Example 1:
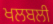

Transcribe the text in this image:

ਖਲਬਲੀ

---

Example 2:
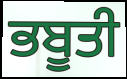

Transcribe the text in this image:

ਭਬੂਤੀ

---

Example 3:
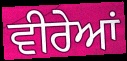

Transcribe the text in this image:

ਵੀਰੇਆਂ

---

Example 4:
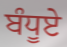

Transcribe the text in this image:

ਬੰਧੂਏ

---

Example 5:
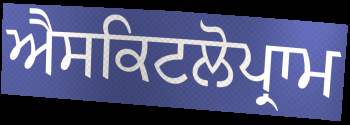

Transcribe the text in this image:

ਐਸਕਿਟਲੋਪ੍ਰਾਮ